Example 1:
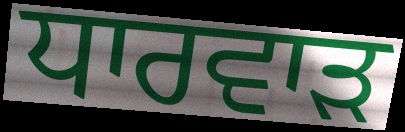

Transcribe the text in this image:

ਧਾਰਵਾੜ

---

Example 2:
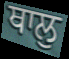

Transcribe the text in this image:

ਥਾਲੁ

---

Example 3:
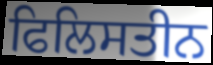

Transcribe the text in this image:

ਫਿਲਿਸਤੀਨ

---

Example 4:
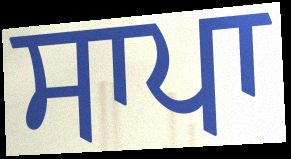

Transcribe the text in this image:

ਸਾਪਾ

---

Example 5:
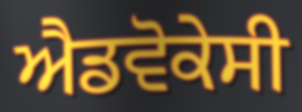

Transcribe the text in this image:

ਐਡਵੋਕੇਸੀ